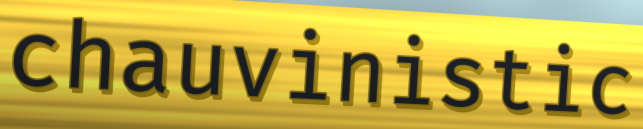
chauvinistic